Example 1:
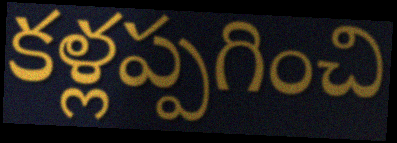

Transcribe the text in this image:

కళ్లప్పగించి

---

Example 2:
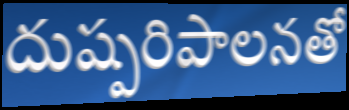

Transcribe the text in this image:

దుష్పరిపాలనతో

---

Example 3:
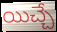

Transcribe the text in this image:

యిచ్చే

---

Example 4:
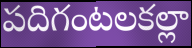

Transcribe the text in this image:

పదిగంటలకల్లా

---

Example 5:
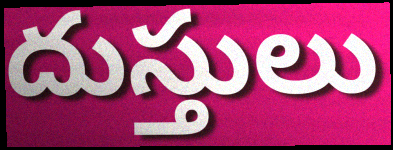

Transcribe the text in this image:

దుస్తులు